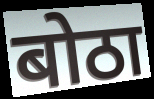
बोठा